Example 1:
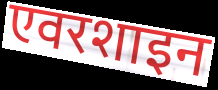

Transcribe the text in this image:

एवरशाइन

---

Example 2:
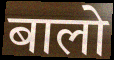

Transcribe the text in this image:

बालो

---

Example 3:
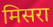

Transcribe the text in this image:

मिसरा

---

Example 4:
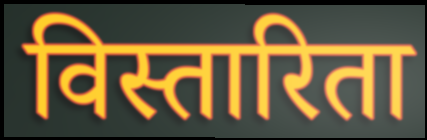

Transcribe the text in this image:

विस्तारिता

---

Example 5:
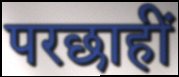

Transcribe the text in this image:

परछाहीं